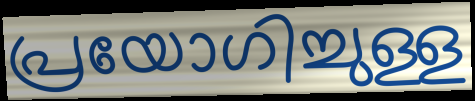
പ്രയോഗിച്ചുള്ള